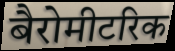
बैरोमीटरिक